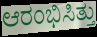
ಆರಂಭಿಸಿತ್ತು